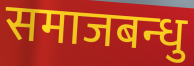
समाजबन्धु